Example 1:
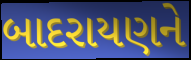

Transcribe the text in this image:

બાદરાયણને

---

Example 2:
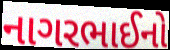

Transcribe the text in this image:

નાગરભાઈનો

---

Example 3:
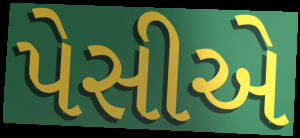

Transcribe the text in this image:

પેસીએ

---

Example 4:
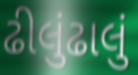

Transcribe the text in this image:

ઢીલુંઢાલું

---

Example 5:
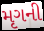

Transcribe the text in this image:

મૃગની